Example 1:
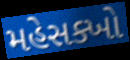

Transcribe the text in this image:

મહેસક્ખો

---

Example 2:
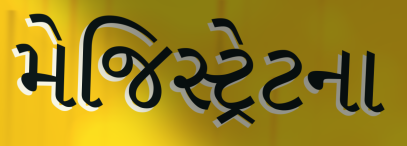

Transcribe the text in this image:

મેજિસ્ટ્રેટના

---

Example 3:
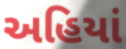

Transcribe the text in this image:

અહિયાં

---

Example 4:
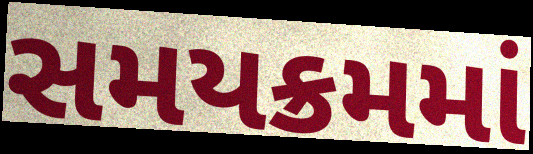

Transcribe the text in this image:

સમયક્રમમાં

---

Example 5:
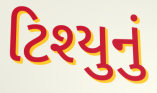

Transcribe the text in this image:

ટિશ્યુનું